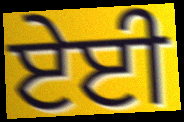
ਏਈ